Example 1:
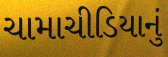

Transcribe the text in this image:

ચામાચીડિયાનું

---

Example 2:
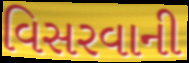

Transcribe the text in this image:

વિસરવાની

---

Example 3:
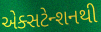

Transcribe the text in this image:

એક્સટેન્શનથી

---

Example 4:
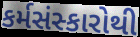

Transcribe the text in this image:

કર્મસંસ્કારોથી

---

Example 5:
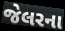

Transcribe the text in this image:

જેલરના